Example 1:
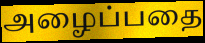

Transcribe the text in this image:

அழைப்பதை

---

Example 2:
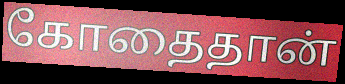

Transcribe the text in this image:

கோதைதான்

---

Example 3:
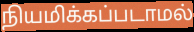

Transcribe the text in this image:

நியமிக்கப்படாமல்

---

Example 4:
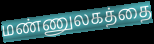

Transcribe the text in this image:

மண்ணுலகத்தை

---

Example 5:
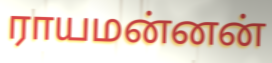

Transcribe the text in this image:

ராயமன்னன்